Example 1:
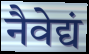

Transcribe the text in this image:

नैवेद्यं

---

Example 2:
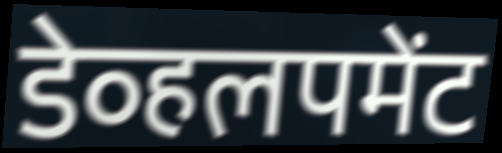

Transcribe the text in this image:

डेव्‍हलपमेंट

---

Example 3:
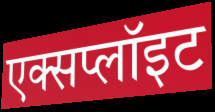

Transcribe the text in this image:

एक्सप्लॉइट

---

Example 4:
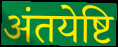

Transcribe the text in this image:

अंतयेष्टि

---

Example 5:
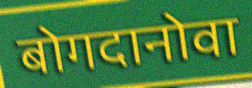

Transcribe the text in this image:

बोगदानोवा